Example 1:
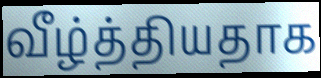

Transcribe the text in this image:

வீழ்த்தியதாக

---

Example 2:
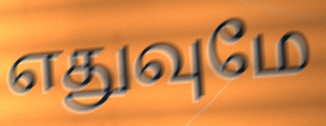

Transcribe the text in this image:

எதுவுமே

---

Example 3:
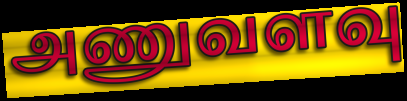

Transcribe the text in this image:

அணுவளவு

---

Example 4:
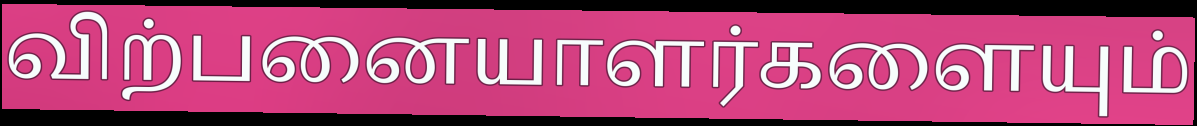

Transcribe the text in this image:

விற்பனையாளர்களையும்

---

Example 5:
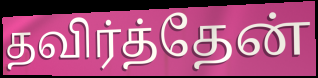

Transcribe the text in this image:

தவிர்த்தேன்